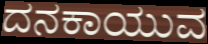
ದನಕಾಯುವ